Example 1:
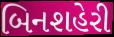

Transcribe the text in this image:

બિનશહેરી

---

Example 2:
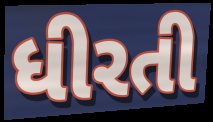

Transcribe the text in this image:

ધીરતી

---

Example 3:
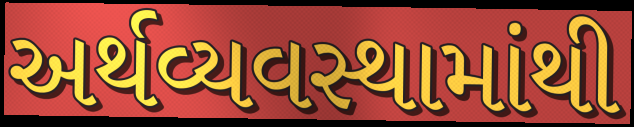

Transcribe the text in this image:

અર્થવ્યવસ્થામાંથી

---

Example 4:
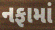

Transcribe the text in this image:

નફામાં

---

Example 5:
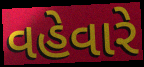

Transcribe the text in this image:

વહેવારે